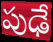
పుఢే